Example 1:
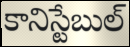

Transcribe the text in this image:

కానిస్టేబుల్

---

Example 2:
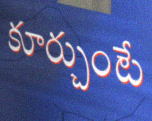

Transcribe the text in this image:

కూర్చుంటే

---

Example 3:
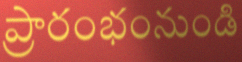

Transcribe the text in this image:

ప్రారంభంనుండి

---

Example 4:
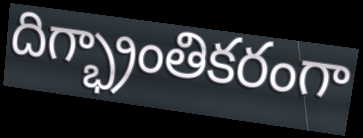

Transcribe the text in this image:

దిగ్భ్రాంతికరంగా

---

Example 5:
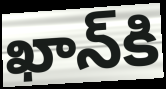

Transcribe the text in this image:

ఖాన్‌కి